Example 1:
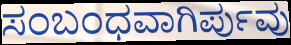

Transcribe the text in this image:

ಸಂಬಂಧವಾಗಿರ್ಪುವು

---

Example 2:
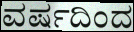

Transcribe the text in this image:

ವರ್ಷದಿಂದ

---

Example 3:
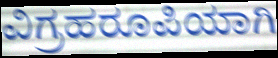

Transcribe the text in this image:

ವಿಗ್ರಹರೂಪಿಯಾಗಿ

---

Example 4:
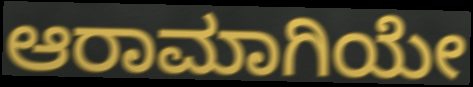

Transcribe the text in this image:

ಆರಾಮಾಗಿಯೇ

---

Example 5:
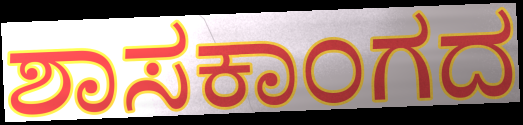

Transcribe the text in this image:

ಶಾಸಕಾಂಗದ